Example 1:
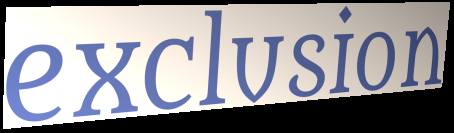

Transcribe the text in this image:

exclusion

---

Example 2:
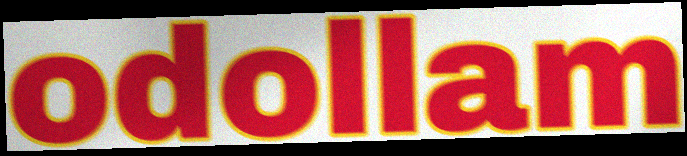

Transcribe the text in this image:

odollam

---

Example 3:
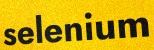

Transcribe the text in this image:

selenium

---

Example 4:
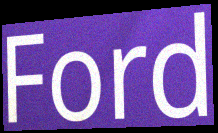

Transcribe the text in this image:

Ford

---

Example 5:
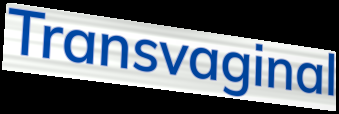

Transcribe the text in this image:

Transvaginal